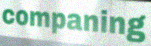
companing